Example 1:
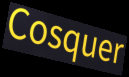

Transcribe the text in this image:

Cosquer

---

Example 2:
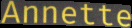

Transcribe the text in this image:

Annette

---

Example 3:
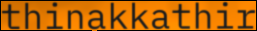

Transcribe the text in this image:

thinakkathir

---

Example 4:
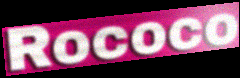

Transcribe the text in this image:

Rococo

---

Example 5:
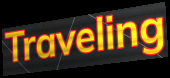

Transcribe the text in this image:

Traveling